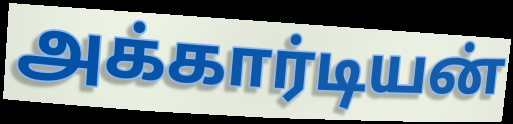
அக்கார்டியன்